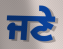
ਜਣੇ